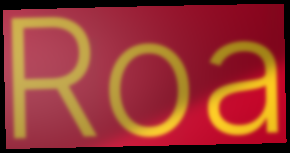
Roa